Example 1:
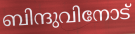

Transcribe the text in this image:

ബിന്ദുവിനോട്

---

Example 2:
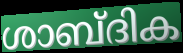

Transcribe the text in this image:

ശാബ്ദിക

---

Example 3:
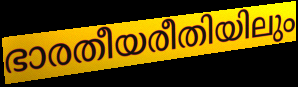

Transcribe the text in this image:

ഭാരതീയരീതിയിലും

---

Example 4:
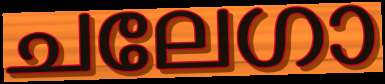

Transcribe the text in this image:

ചലേഗാ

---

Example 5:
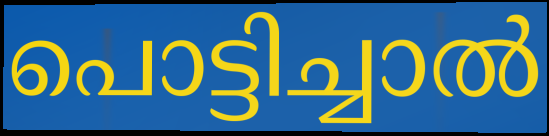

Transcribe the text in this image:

പൊട്ടിച്ചാൽ